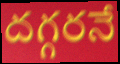
దగ్గరనే